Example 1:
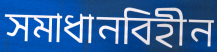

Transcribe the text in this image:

সমাধানবিহীন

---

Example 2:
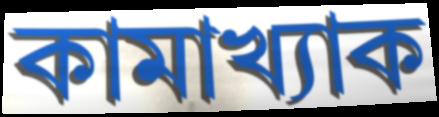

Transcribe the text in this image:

কামাখ্যাক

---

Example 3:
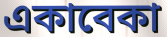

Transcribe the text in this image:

একাবেকা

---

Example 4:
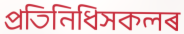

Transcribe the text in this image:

প্ৰতিনিধিসকলৰ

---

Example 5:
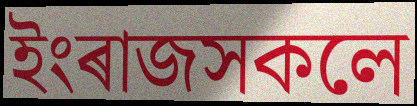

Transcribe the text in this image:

ইংৰাজসকলে